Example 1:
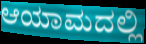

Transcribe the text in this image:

ಆಯಾಮದಲ್ಲಿ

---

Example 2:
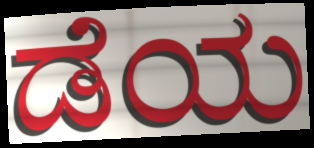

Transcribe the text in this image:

ಡೆಯ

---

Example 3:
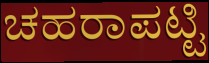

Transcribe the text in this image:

ಚಹರಾಪಟ್ಟಿ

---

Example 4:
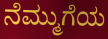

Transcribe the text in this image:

ನೆಮ್ಮುಗೆಯ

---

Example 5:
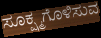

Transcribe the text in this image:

ಸೂಕ್ಷ್ಮಗೊಳಿಸುವ